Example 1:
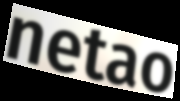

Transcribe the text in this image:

netao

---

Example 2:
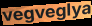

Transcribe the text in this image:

vegveglya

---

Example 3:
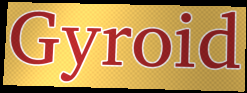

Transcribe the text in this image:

Gyroid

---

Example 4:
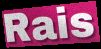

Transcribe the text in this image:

Rais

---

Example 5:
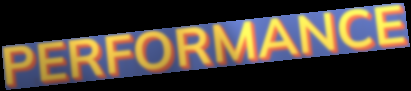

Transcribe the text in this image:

PERFORMANCE